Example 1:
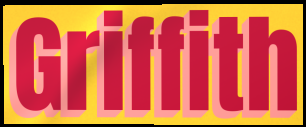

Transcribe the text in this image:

Griffith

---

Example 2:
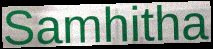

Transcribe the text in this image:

Samhitha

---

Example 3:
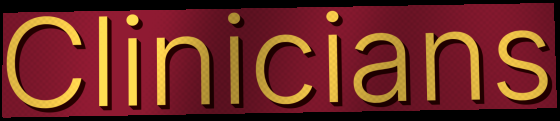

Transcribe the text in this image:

Clinicians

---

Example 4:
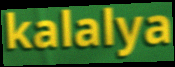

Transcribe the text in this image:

kalalya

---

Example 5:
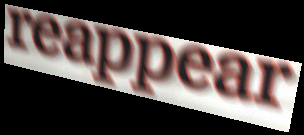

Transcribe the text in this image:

reappear